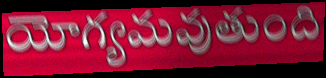
యోగ్యమవుతుంది